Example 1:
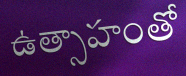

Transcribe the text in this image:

ఉత్సాహంతో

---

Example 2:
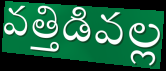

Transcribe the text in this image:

వత్తిడివల్ల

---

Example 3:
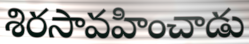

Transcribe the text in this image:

శిరసావహించాడు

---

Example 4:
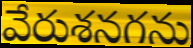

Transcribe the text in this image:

వేరుశనగను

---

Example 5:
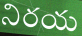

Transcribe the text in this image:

నిరయ